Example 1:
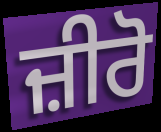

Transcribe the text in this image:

ਜ਼ੀਰੋ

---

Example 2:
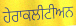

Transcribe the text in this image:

ਹੇਰਾਕਲੀਟੀਅਨ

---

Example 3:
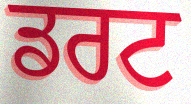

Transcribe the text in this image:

ਡਰਟ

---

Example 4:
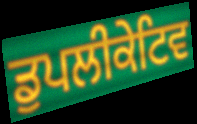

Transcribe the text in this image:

ਡੁਪਲੀਕੇਟਿਵ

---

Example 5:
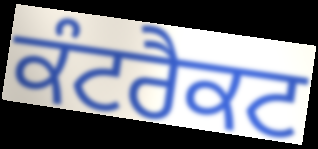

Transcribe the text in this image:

ਕੰਟਰੈਕਟ